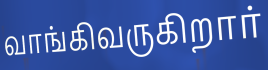
வாங்கிவருகிறார்